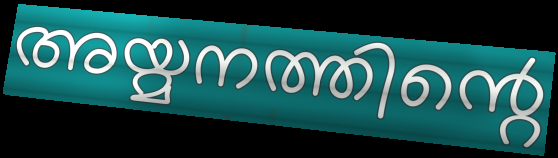
അയ്മനത്തിന്റെ